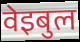
वेइबुल